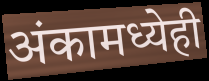
अंकामध्येही